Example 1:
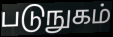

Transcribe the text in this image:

படுநுகம்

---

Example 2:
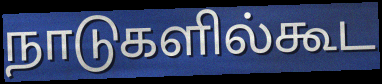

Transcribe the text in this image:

நாடுகளில்கூட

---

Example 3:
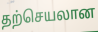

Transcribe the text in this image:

தற்செயலான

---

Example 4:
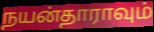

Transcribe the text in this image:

நயன்தாராவும்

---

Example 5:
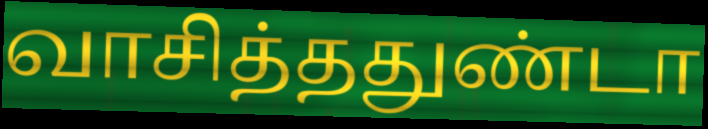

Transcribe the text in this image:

வாசித்ததுண்டா